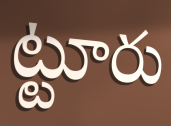
ట్టూరు